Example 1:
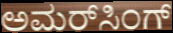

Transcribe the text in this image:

ಅಮರ್‌ಸಿಂಗ್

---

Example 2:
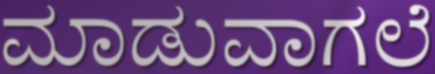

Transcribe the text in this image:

ಮಾಡುವಾಗಲೆ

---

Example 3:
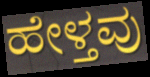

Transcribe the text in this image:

ಹೇಳ್ತವು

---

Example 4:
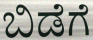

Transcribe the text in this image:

ಬಿಡೆಗೆ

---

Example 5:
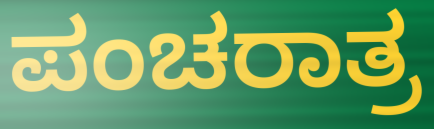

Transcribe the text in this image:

ಪಂಚರಾತ್ರ